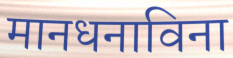
मानधनाविना